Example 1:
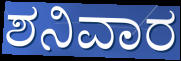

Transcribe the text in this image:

ಶನಿವಾರ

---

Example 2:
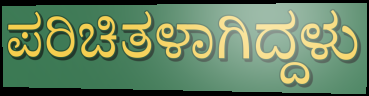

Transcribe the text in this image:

ಪರಿಚಿತಳಾಗಿದ್ದಳು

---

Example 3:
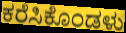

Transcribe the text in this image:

ಕರೆಸಿಕೊಂಡಳು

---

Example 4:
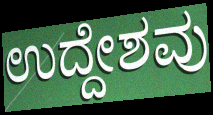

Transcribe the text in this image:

ಉದ್ದೇಶವು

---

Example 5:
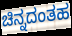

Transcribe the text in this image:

ಚಿನ್ನದಂತಹ